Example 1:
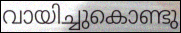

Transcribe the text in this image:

വായിച്ചുകൊണ്ടു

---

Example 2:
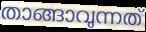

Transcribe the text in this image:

താങ്ങാവുന്നത്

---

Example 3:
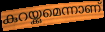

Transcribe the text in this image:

കുറയ്ക്കുമെന്നാണ്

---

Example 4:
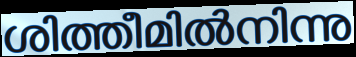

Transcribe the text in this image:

ശിത്തീമിൽനിന്നു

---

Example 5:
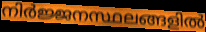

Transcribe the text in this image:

നിർജ്ജനസ്ഥലങ്ങളിൽ